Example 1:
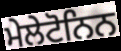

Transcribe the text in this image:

ਮੇਲੇਟੋਨਿਨ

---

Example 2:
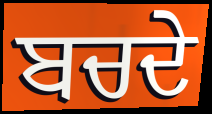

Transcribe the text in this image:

ਬਚਦੇ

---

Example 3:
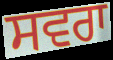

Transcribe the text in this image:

ਸਵਰਾ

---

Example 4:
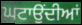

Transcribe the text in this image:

ਘਟਾਉਂਦੀਆਂ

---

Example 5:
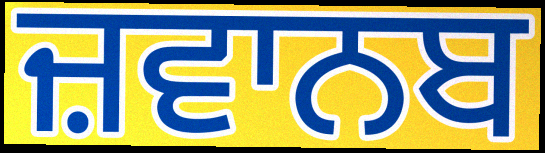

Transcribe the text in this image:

ਜ਼ਵਾਨਬ